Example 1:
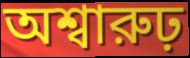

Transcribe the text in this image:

অশ্বারুঢ়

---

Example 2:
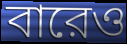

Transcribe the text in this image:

বারেও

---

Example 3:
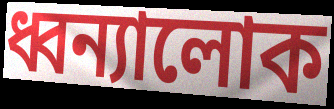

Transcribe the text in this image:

ধ্বন্যালোক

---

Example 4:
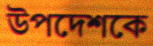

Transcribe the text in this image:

উপদেশকে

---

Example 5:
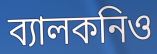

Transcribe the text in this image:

ব্যালকনিও